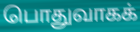
பொதுவாகக்